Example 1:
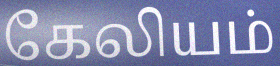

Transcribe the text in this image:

கேலியம்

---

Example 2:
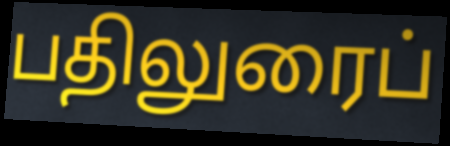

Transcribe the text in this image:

பதிலுரைப்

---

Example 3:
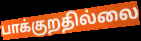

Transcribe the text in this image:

பாக்குறதில்லை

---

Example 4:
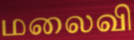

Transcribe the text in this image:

மலைவி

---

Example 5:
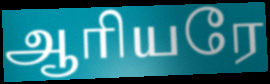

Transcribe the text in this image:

ஆரியரே